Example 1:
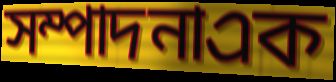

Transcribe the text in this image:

সম্পাদনাএক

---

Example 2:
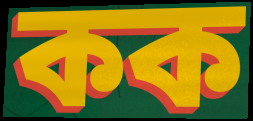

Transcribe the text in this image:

কক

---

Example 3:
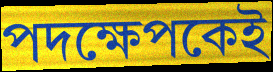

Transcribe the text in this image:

পদক্ষেপকেই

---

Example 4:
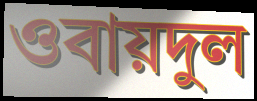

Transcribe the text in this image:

ওবায়দুল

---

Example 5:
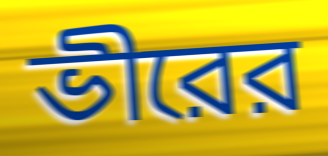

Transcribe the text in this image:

ভীরের